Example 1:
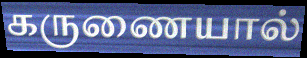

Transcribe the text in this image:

கருணையால்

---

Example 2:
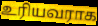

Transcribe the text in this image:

உரியவராக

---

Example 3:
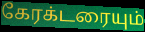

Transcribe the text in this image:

கேரக்டரையும்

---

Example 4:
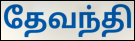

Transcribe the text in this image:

தேவந்தி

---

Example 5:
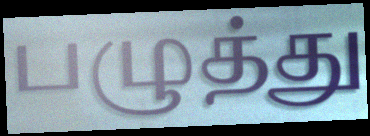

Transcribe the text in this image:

பழுத்து